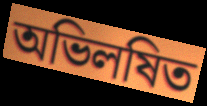
অভিলষিত